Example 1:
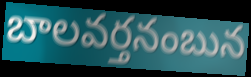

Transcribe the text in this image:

బాలవర్తనంబున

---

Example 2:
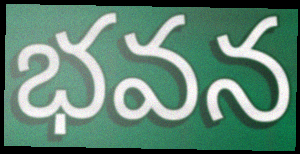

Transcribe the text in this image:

భవన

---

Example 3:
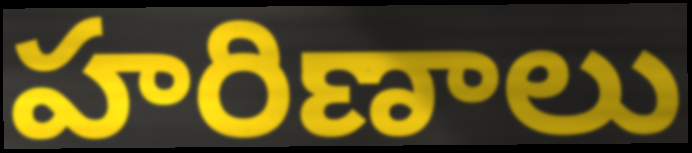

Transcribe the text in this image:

హరిణాలు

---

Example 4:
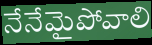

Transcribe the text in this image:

నేనేమైపోవాలి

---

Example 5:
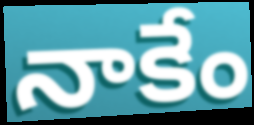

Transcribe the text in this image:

నాకేం